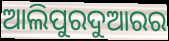
ଆଲିପୁରଦୁଆରର